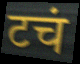
टचं